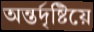
অন্তৰ্দৃষ্টিয়ে